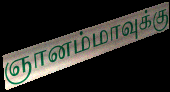
ஞானம்மாவுக்கு